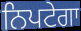
ਨਿਪਟੇਗਾ